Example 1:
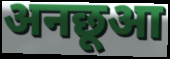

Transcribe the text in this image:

अनछूआ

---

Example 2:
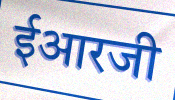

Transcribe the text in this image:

ईआरजी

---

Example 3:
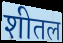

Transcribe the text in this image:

शीतल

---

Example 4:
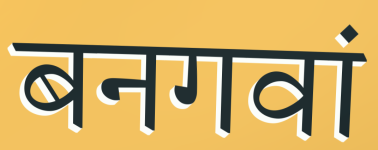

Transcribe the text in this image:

बनगवां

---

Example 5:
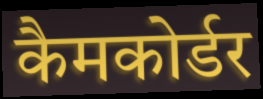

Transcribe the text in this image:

कैमकोर्डर